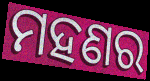
ମହଣର